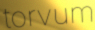
torvum